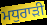
ਮਧੁਰਾੜੀ